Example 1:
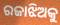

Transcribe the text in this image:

ରଜାଝିଅକୁ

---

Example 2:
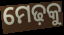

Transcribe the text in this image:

ମେଢ଼କୁ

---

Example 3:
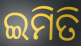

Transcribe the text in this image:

ଇମିତି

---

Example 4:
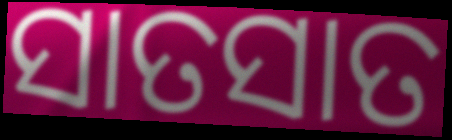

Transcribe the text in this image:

ସାତସାତ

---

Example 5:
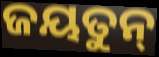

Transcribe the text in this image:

ଜୟତୁନ୍